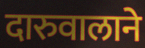
दारुवालाने